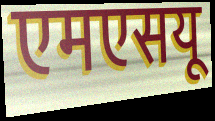
एमएसयू